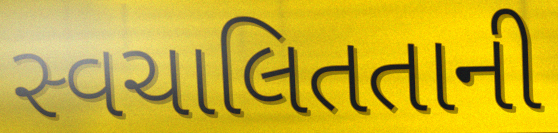
સ્વચાલિતતાની